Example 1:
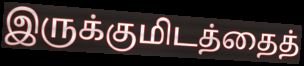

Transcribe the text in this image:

இருக்குமிடத்தைத்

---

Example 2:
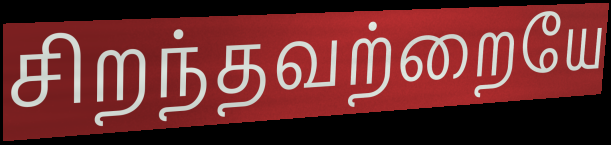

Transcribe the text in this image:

சிறந்தவற்றையே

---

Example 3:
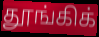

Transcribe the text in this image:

தூங்கிக்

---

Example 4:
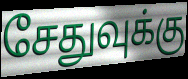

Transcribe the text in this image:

சேதுவுக்கு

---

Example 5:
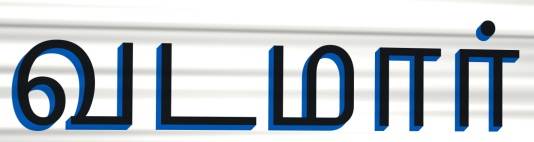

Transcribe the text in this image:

வடமார்